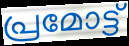
പ്രമോട്ട്